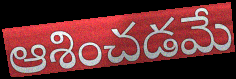
ఆశించడమే